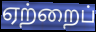
ஏற்றைப்